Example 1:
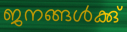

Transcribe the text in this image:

ജനങ്ങൾക്കു്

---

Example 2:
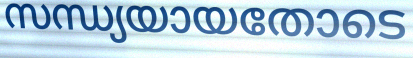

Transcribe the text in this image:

സന്ധ്യയായതോടെ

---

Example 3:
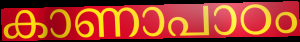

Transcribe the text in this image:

കാണാപാഠം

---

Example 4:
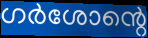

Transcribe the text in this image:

ഗർശോന്റെ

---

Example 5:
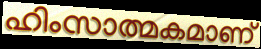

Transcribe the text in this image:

ഹിംസാത്മകമാണ്